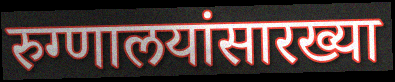
रुग्णालयांसारख्या